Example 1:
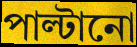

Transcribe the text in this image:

পাল্টানো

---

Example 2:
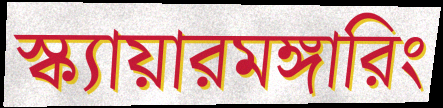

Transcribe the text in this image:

স্ক্যায়ারমঙ্গারিং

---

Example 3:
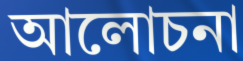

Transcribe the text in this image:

আলোচনা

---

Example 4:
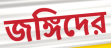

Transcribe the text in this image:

জঙ্গিদের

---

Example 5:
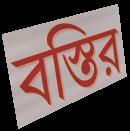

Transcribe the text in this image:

বস্তির